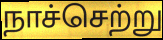
நாச்செற்று